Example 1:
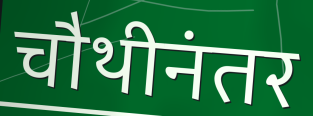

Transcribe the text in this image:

चौथीनंतर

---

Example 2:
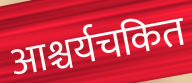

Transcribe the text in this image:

आश्चर्यचकित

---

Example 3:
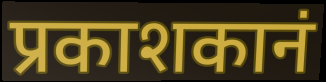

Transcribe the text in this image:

प्रकाशकानं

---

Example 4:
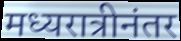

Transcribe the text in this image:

मध्यरात्रीनंतर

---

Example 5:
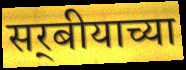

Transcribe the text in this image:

सर्बीयाच्या